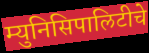
म्युनिसिपालिटीचे